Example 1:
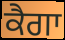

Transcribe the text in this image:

ਕੈਗਾ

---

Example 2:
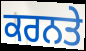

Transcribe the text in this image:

ਕਰਨਤੇ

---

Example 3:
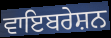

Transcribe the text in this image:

ਵਾਇਬਰੇਸ਼ਨ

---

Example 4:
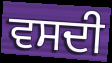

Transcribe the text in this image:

ਵਸਦੀ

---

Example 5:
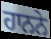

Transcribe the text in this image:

ਹਾਨਨੇ